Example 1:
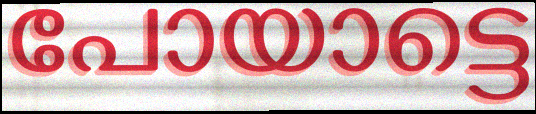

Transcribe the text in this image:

പോയാട്ടെ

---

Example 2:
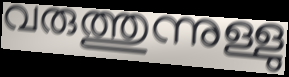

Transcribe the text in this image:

വരുത്തുന്നുള്ളു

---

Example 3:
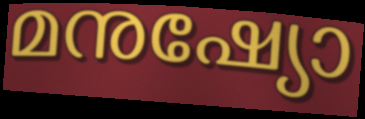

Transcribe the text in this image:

മനുഷ്യോ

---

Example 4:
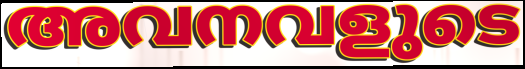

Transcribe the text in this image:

അവനവളുടെ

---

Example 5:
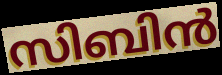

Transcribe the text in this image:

സിബിൻ